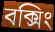
বক্সিং